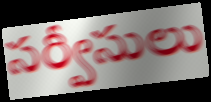
సర్వీసులు